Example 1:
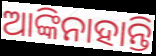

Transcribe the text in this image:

ଆଙ୍କିନାହାନ୍ତି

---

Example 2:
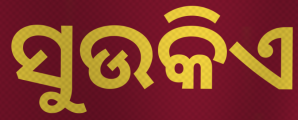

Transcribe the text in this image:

ସୁଉକିଏ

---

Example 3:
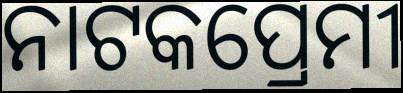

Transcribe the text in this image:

ନାଟକପ୍ରେମୀ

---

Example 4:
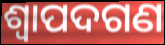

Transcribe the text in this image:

ଶ୍ୱାପଦଗଣ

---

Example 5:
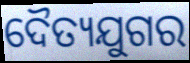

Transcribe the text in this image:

ଦୈତ୍ୟଯୁଗର